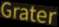
Grater